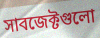
সাবজেক্টগুলো